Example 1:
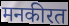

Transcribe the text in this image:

मनकीरत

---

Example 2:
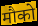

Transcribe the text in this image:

मौको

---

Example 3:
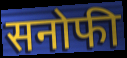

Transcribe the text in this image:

सनोफी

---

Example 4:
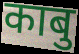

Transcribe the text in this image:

काबु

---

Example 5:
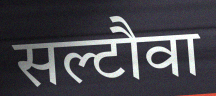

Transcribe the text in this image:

सल्टौवा